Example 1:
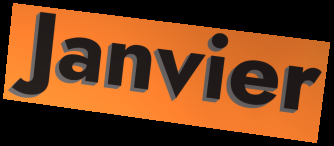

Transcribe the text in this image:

Janvier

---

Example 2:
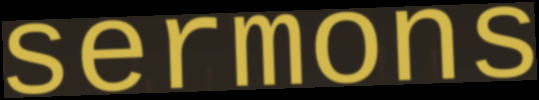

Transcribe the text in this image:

sermons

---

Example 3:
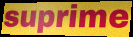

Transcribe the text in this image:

suprime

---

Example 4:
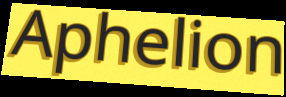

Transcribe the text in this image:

Aphelion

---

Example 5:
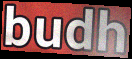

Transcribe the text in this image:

budh